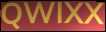
QWIXX